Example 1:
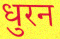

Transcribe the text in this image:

धुरन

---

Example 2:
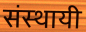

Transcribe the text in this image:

संस्थायी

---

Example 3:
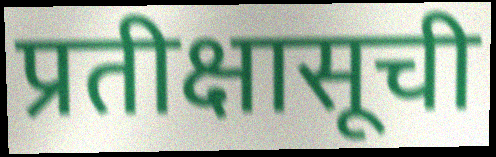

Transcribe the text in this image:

प्रतीक्षासूची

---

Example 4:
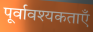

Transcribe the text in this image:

पूर्वावश्यकताएँ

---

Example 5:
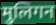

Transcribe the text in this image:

मुलिगन